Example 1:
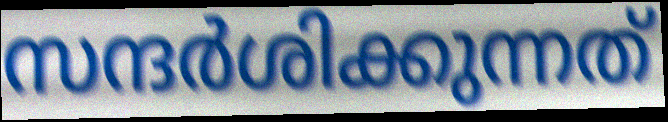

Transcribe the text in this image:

സന്ദർശിക്കുന്നത്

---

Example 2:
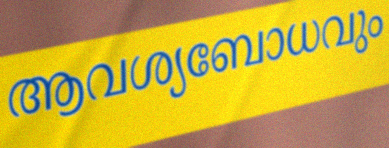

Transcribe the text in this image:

ആവശ്യബോധവും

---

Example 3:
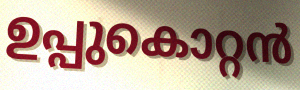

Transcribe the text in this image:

ഉപ്പുകൊറ്റൻ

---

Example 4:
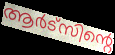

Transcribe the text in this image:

ആർട്സിന്റെ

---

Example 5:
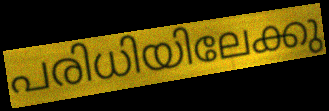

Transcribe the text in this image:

പരിധിയിലേക്കു